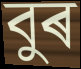
বুৰ